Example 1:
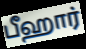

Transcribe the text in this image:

பீஹார்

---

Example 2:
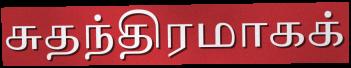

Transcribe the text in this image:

சுதந்திரமாகக்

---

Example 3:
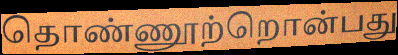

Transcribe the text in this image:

தொண்ணூற்றொன்பது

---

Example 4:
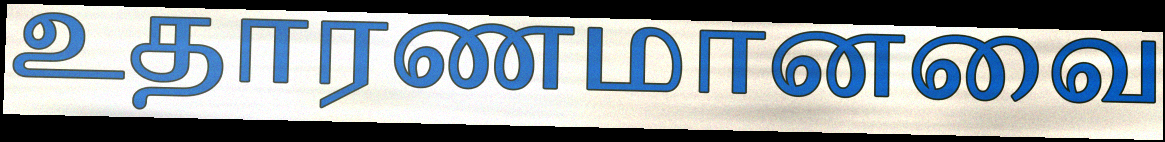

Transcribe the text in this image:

உதாரணமானவை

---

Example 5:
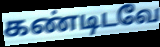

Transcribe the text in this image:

கண்டிடவே